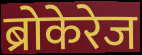
ब्रोकेरेज